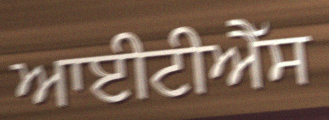
ਆਈਟੀਐੱਸ